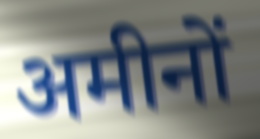
अमीनों